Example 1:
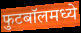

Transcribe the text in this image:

फुटबॉलमध्ये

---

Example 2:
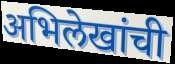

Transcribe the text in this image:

अभिलेखांची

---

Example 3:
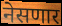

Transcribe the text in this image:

नेसणार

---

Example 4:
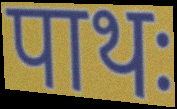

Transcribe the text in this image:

पाथः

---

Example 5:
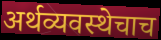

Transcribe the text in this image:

अर्थव्यवस्थेचाच